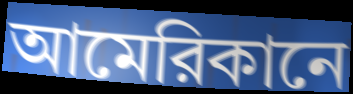
আমেরিকানে